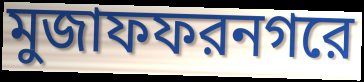
মুজাফফরনগরে